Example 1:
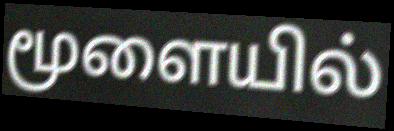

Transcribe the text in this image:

மூளையில்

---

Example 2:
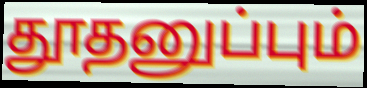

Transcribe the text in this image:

தூதனுப்பும்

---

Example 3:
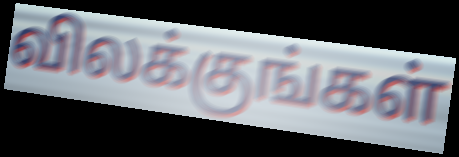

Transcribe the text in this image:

விலக்குங்கள்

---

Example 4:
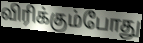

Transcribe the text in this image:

விரிக்கும்போது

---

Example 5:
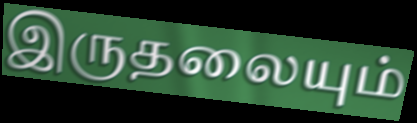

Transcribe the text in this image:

இருதலையும்